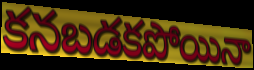
కనబడకపోయినా